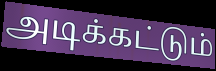
அடிக்கட்டும்